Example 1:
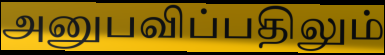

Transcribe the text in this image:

அனுபவிப்பதிலும்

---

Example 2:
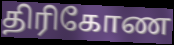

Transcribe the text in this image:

திரிகோண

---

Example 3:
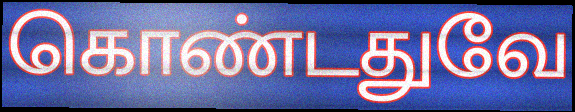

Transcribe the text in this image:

கொண்டதுவே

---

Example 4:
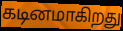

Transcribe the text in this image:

கடினமாகிறது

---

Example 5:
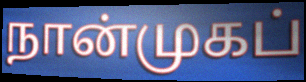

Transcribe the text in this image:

நான்முகப்